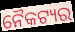
ନୈକଟ୍ୟର